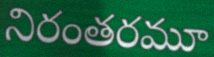
నిరంతరమూ